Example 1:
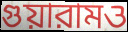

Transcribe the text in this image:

গুয়ারামও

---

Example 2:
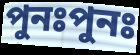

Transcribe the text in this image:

পুনঃপুনঃ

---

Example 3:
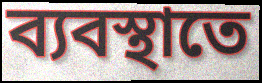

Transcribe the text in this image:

ব্যবস্থাতে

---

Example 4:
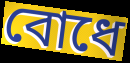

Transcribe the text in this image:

বোধে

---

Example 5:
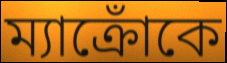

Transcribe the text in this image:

ম্যাক্রোঁকে